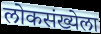
लोकसंख्येला